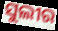
ସୁଲୀର